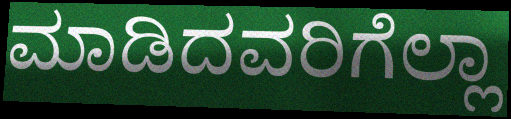
ಮಾಡಿದವರಿಗೆಲ್ಲಾ